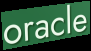
oracle